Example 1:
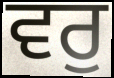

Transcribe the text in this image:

ਵਰੁ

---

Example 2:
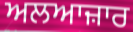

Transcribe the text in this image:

ਅਲਆਜ਼ਾਰ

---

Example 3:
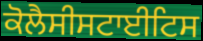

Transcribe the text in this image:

ਕੋਲੈਸੀਸਟਾਈਟਿਸ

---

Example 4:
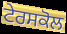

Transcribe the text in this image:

ਟੇਰਸਕੋਲ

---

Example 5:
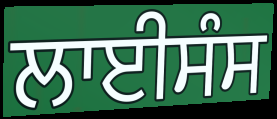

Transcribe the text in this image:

ਲਾਈਸੰਸ